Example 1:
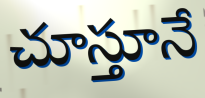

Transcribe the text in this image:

చూస్తూనే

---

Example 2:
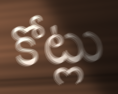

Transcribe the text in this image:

కోట్లు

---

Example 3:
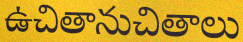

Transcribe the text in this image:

ఉచితానుచితాలు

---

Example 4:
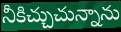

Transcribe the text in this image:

నీకిచ్చుచున్నాను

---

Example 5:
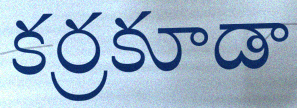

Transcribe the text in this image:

కర్రకూడా